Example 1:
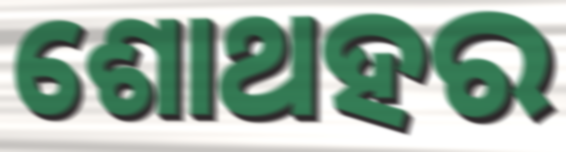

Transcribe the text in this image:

ଶୋଥହର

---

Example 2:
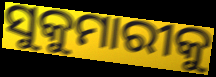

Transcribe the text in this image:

ସୁକୁମାରୀକୁ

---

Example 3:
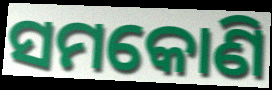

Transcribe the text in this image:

ସମକୋଣି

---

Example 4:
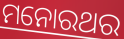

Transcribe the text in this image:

ମନୋରଥର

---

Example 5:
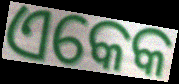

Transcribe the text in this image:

ଏକେକ